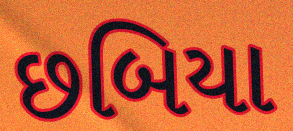
છબિયા